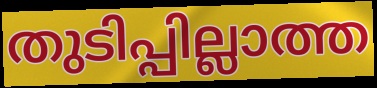
തുടിപ്പില്ലാത്ത